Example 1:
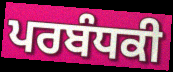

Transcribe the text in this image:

ਪਰਬੰਧਕੀ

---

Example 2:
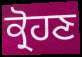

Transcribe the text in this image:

ਕ੍ਰੋਹਣ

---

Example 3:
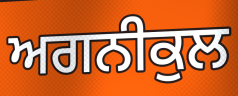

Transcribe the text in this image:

ਅਗਨੀਕੁਲ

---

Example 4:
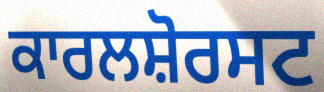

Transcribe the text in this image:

ਕਾਰਲਸ਼ੋਰਸਟ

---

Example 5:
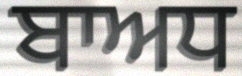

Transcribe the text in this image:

ਬਾਅਧ